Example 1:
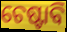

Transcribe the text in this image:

ଚେଷ୍ଟାବି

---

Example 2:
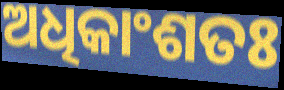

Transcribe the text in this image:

ଅଧିକାଂଶତଃ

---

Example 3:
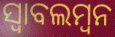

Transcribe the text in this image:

ସ୍ୱାବଲମ୍ବନ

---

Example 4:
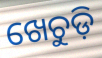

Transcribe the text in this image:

ଖେଚୁଡ଼ି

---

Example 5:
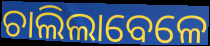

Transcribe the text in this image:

ଚାଲିଲାବେଳେ